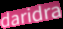
daridra